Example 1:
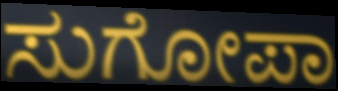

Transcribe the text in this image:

ಸುಗೋಪಾ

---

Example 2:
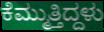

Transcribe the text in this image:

ಕೆಮ್ಮುತ್ತಿದ್ದಳು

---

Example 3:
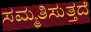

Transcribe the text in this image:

ಸಮ್ಮತಿಸುತ್ತದೆ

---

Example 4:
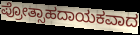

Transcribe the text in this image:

ಪ್ರೋತ್ಸಾಹದಾಯಕವಾದ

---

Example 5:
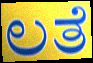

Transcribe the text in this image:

ಲತೆ